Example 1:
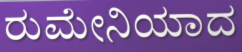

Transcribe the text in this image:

ರುಮೇನಿಯಾದ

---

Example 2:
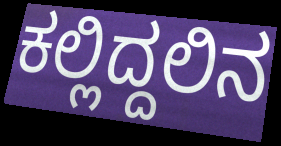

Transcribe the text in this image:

ಕಲ್ಲಿದ್ದಲಿನ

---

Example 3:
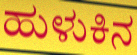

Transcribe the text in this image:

ಹುಳುಕಿನ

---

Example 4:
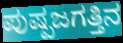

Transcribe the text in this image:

ಪುಷ್ಪಜಗತ್ತಿನ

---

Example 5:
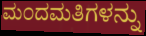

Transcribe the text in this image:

ಮಂದಮತಿಗಳನ್ನು